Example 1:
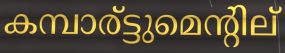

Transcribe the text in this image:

കമ്പാര്ട്ടുമെന്റില്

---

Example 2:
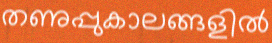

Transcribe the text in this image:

തണുപ്പുകാലങ്ങളിൽ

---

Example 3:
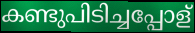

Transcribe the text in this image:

കണ്ടുപിടിച്ചപ്പോള്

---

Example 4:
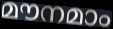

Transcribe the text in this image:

മൗനമാം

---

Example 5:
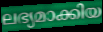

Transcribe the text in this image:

ലഭ്യമാക്കിയ